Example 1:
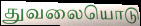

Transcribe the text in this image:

துவலையொடு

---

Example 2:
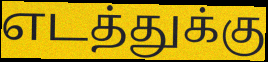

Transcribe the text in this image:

எடத்துக்கு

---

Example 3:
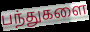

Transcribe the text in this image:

பந்துகளை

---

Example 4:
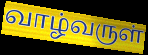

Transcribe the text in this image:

வாழ்வருள்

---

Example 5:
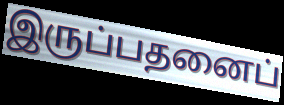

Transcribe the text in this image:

இருப்பதனைப்